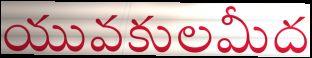
యువకులమీద